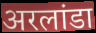
अरलांडा